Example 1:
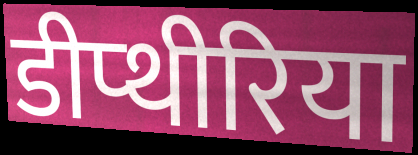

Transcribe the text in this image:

डीप्थीरिया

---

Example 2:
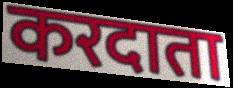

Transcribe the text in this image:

करदाता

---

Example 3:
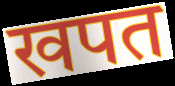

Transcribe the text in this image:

खपत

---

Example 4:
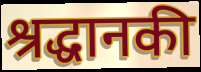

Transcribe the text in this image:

श्रद्धानकी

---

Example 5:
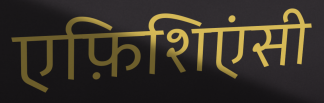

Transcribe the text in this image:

एफ़िशिएंसी